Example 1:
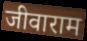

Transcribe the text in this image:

जीवाराम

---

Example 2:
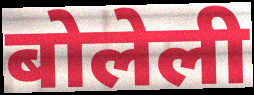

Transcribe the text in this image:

बोलेली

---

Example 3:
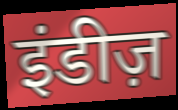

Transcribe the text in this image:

इंडीज़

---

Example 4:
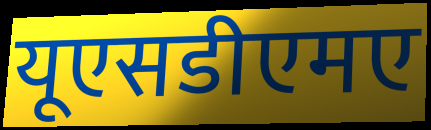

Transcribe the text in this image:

यूएसडीएमए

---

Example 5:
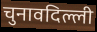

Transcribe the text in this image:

चुनावदिल्ली